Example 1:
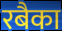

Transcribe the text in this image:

रबैका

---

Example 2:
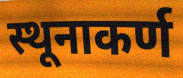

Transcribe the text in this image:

स्थूनाकर्ण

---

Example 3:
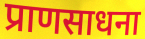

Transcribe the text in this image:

प्राणसाधना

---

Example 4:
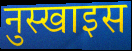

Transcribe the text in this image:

नुस्खाइस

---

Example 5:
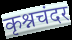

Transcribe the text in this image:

कृश्नचंदर